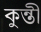
কুন্তী